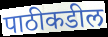
पाठीकडील